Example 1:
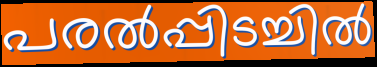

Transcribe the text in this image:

പരൽപ്പിടച്ചിൽ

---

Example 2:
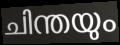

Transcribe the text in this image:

ചിന്തയും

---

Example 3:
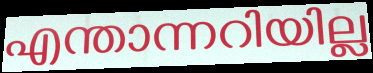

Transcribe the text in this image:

എന്താന്നറിയില്ല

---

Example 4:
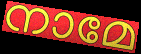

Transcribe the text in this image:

നാമേ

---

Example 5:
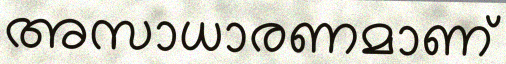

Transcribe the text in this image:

അസാധാരണമാണ്